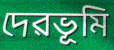
দেৱভূমি